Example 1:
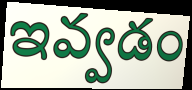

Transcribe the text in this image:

ఇవ్వడం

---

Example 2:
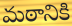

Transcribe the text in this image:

మఠానికి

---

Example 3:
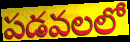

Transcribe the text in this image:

పడవలలో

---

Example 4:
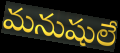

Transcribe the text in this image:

మనుషులే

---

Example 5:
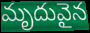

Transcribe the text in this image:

మృదువైన